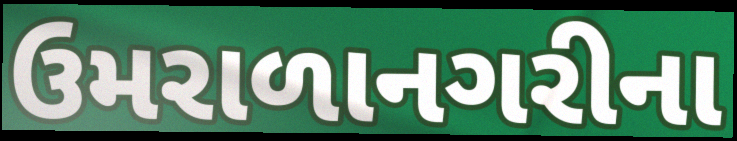
ઉમરાળાનગરીના